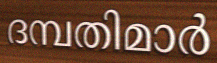
ദമ്പതിമാർ